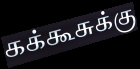
கக்கூசுக்கு